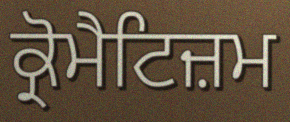
ਕ੍ਰੋਮੈਟਿਜ਼ਮ